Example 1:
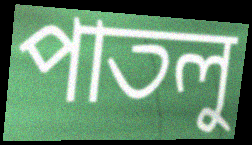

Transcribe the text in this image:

পাতলু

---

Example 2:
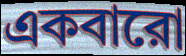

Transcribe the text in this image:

একবারো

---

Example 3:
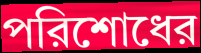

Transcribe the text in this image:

পরিশোধের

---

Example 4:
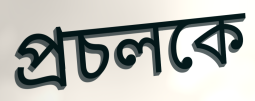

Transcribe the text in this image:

প্রচলকে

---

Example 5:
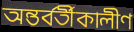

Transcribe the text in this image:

অন্তর্বর্তীকালীণ